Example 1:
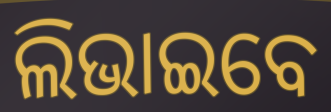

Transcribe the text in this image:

ଲିଭାଇବେ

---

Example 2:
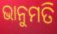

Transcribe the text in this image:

ଭାନୁମତି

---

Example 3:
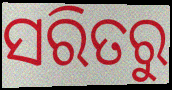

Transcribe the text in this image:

ସରିତରୁ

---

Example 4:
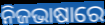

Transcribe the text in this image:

ନିଜଭାଷାରେ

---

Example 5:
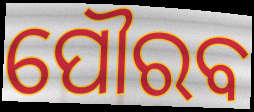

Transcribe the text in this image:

ପୌରବ